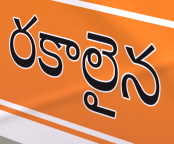
రకాలైన